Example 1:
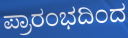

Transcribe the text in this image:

ಪ್ರಾರಂಭದಿಂದ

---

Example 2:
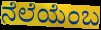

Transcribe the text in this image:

ನೆಲೆಯೆಂಬ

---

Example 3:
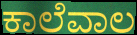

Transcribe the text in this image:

ಕಾಲೆವಾಲ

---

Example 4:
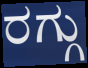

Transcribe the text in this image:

ರಗ್ಗು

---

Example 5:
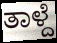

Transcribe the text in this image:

ತಾಳ್ದೆ